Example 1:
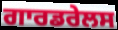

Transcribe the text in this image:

ਗਾਰਡਰੇਲਸ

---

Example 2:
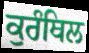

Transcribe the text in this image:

ਕੁਰੰਥਿਲ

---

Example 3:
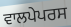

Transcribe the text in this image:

ਵਾਲਪੇਪਰਸ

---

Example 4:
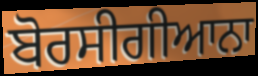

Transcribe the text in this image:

ਬੋਰਸੀਗੀਆਨਾ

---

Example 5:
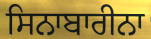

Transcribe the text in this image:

ਸਿਨਾਬਾਰੀਨਾ